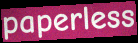
paperless